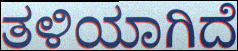
ತಳಿಯಾಗಿದೆ